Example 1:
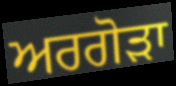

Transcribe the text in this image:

ਅਰਗੋੜਾ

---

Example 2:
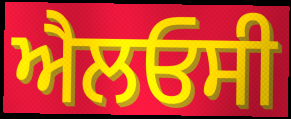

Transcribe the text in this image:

ਐਲਓਸੀ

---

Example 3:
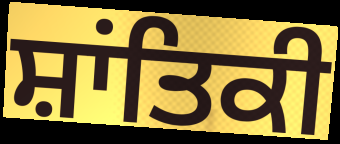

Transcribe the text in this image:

ਸ਼ਾਂਤਿਕੀ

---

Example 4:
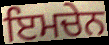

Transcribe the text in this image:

ਇਮਚੇਨ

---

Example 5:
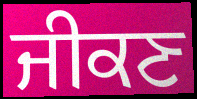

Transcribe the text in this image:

ਜੀਕਣ